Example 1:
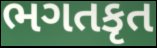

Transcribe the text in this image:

ભગતકૃત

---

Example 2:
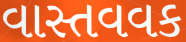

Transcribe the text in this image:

વાસ્તવવક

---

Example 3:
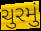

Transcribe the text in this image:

ચુરમું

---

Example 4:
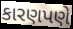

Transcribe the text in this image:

કારણપણે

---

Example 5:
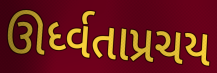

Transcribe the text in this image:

ઊર્ધ્વતાપ્રચય